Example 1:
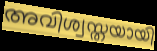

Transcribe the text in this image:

അവിശ്വസ്തയായി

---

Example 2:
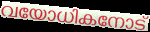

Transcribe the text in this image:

വയോധികനോട്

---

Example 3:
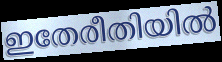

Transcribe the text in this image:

ഇതേരീതിയിൽ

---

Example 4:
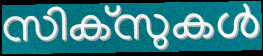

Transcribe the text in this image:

സിക്സുകൾ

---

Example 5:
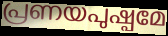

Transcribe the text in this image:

പ്രണയപുഷ്പമേ